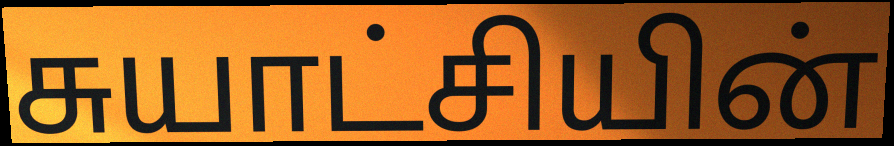
சுயாட்சியின்